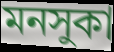
মনসুকা